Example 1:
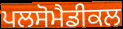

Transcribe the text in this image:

ਪਲਸੋਮੈਡੀਕਲ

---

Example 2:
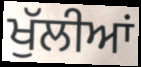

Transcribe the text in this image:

ਖੁੱਲੀਆਂ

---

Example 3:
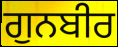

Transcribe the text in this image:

ਗੁਨਬੀਰ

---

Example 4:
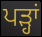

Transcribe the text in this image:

ਪੜ੍ਹਾਂ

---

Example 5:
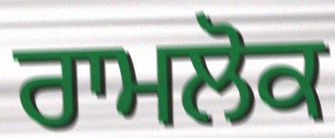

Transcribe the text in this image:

ਰਾਮਲੋਕ